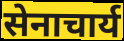
सेनाचार्य